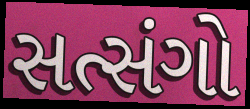
સત્સંગો